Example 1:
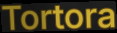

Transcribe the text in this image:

Tortora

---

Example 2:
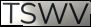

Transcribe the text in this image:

TSWV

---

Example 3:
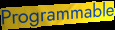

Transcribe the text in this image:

Programmable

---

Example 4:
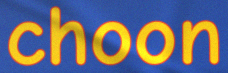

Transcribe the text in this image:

choon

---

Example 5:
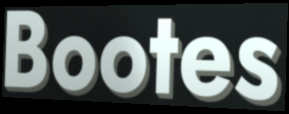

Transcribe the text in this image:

Bootes